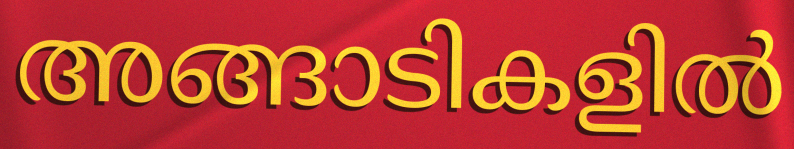
അങ്ങാടികളിൽ